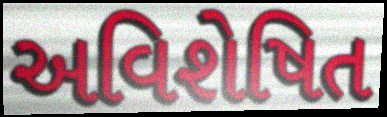
અવિશેષિત